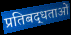
प्रतिबद्धताओं